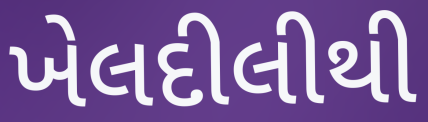
ખેલદીલીથી